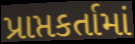
પ્રાપ્તકર્તામાં